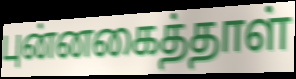
புன்னகைத்தாள்